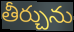
తీర్చును